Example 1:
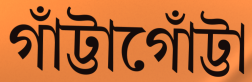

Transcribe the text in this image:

গাঁট্টাগোঁট্টা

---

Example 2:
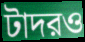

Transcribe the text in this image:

টাদরও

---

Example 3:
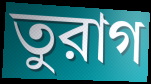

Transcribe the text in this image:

তুরাগ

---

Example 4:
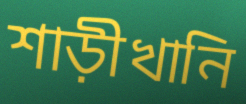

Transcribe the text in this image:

শাড়ীখানি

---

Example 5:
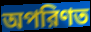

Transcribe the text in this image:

অপরিণত